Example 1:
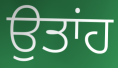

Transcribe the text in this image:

ਉਤਾਂਹ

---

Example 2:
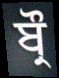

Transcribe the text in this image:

ਬ੍ਰੌ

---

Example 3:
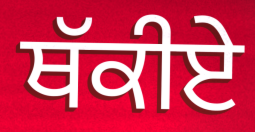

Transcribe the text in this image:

ਥੱਕੀਏ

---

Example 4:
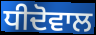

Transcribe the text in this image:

ਧੀਦੋਵਾਲ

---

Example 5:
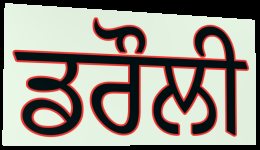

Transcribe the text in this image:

ਡਰੌਲੀ